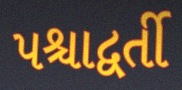
પશ્ચાદ્વર્તી